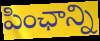
పింఛాన్ని